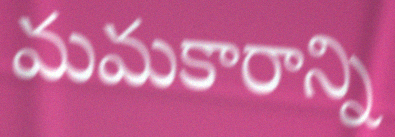
మమకారాన్ని